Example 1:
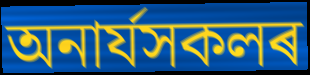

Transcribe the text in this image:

অনাৰ্যসকলৰ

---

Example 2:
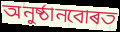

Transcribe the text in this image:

অনুষ্ঠানবোৰত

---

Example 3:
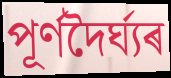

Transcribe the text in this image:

পূৰ্ণদৈৰ্ঘ্যৰ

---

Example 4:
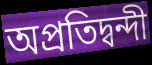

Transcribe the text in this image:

অপ্ৰতিদ্বন্দী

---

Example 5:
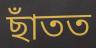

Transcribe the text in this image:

ছাঁতত